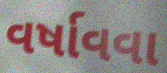
વર્ષાવવા